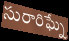
సురారిఘ్నే